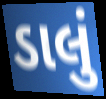
ડાલું